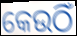
କେଉଠିଁ